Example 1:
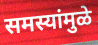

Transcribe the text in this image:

समस्यांमुळे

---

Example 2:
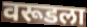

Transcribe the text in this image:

वरूडला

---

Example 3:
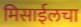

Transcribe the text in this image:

मिसाईलचा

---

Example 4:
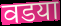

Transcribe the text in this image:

वडया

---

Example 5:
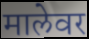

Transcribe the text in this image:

मालेवर